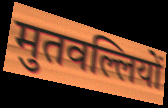
मुतवल्लियों